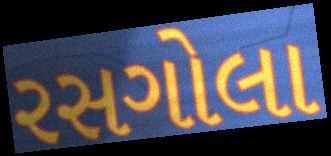
રસગોલા